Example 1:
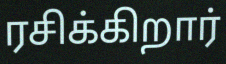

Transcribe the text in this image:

ரசிக்கிறார்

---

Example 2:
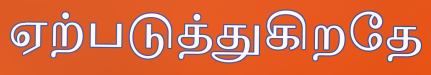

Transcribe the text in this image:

ஏற்படுத்துகிறதே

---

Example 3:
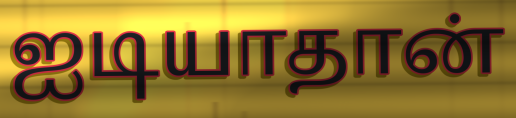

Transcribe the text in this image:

ஐடியாதான்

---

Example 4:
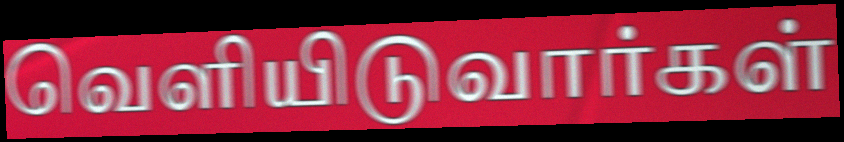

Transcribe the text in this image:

வெளியிடுவார்கள்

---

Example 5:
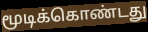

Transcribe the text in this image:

மூடிக்கொண்டது